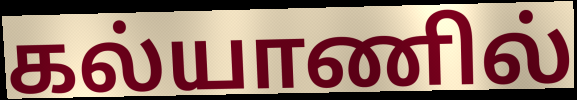
கல்யாணில்